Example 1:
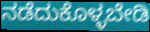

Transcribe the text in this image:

ನಡೆದುಕೊಳ್ಳಬೇಡಿ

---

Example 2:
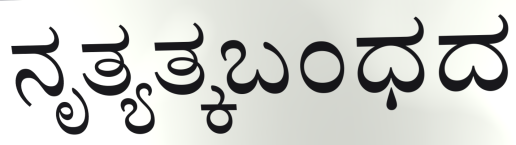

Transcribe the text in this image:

ನೃತ್ಯತ್ಕಬಂಧದ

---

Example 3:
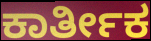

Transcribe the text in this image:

ಕಾರ್ತೀಕ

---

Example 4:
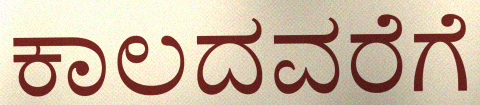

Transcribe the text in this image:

ಕಾಲದವರೆಗೆ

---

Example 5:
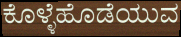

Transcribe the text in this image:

ಕೊಳ್ಳೆಹೊಡೆಯುವ